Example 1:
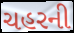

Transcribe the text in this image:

ચહરની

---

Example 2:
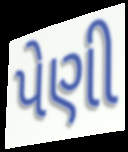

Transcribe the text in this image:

પેણી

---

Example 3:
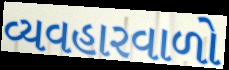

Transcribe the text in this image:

વ્યવહારવાળો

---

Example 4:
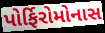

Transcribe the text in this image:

પોર્ફિરોમોનાસ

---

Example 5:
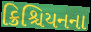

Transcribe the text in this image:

ક્રિશ્ચિયનના